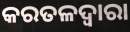
କରତଳଦ୍ଵାରା